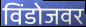
विंडोजवर